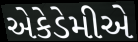
એકેડેમીએ